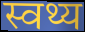
स्वथ्य